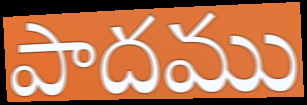
పాదము